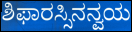
ಶಿಫಾರಸ್ಸಿನನ್ವಯ